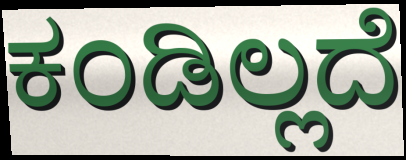
ಕಂಡಿಲ್ಲದೆ